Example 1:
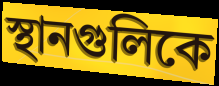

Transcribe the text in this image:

স্থানগুলিকে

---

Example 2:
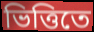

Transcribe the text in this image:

ভিত্তিতে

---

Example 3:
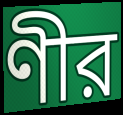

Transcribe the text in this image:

ণীর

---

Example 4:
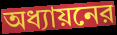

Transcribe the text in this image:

অধ্যায়নের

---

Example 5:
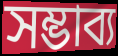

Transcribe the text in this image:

সম্ভাব্য